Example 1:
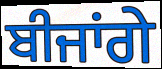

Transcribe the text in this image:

ਬੀਜਾਂਗੇ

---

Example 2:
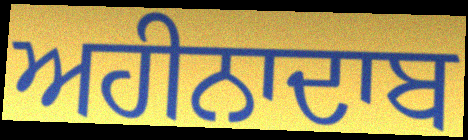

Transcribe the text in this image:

ਅਹੀਨਾਦਾਬ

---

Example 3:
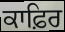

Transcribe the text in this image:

ਕਾਫ਼ਿਰ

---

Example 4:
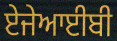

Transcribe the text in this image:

ਏਜੇਆਈਬੀ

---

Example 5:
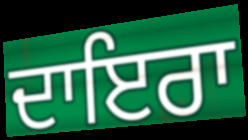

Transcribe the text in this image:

ਦਾਇਰਾ